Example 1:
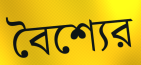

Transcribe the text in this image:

বৈশ্যের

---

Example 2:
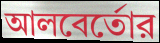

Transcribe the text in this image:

আলবের্তোর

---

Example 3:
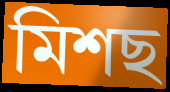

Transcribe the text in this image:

মিশছ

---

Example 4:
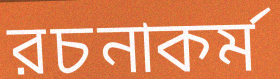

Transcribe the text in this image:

রচনাকর্ম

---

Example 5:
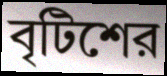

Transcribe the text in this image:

বৃটিশের